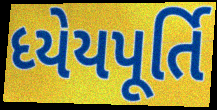
ધ્યેયપૂર્તિ